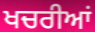
ਖਚਰੀਆਂ